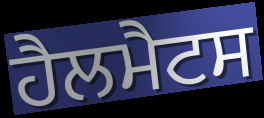
ਹੈਲਮੈਟਸ